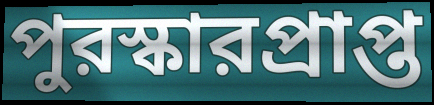
পুরস্কারপ্রাপ্ত